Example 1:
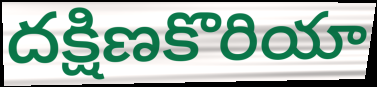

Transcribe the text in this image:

దక్షిణకొరియా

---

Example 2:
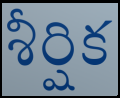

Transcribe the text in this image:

శీర్షిక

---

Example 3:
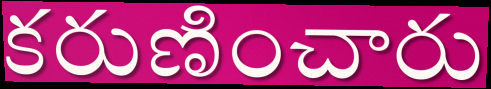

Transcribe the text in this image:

కరుణించారు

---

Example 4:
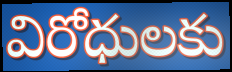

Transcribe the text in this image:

విరోధులకు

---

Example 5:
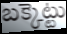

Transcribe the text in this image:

బక్కెట్టు